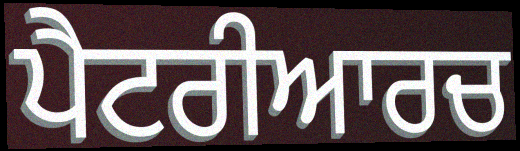
ਪੈਟਰੀਆਰਚ